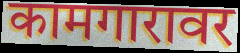
कामगारावर